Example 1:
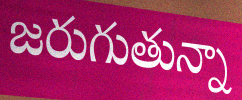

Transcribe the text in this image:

జరుగుతున్నా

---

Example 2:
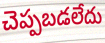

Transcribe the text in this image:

చెప్పబడలేదు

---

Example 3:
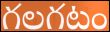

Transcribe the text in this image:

గలగటం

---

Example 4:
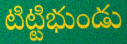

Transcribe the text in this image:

టిట్టిభుండు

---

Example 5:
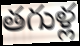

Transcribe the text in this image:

తగుళ్ల